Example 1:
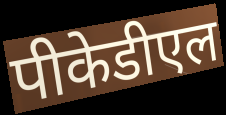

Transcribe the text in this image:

पीकेडीएल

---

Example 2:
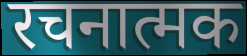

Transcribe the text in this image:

रचनात्मक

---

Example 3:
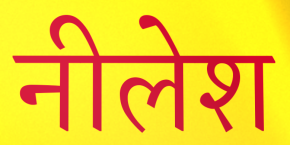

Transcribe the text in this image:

नीलेश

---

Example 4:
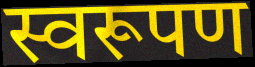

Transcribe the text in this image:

स्वरूपण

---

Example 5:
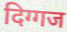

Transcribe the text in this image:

दिग्गज